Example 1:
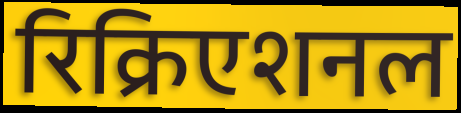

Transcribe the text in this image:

रिक्रिएशनल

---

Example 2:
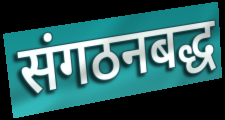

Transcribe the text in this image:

संगठनबद्ध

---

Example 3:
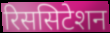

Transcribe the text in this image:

रिससिटेशन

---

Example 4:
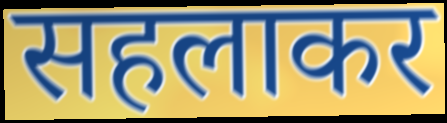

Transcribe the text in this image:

सहलाकर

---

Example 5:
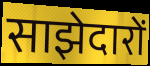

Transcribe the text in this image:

साझेदारों